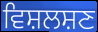
ਵਿਸ਼ਲਸ਼ਣ